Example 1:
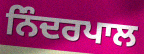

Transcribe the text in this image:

ਨਿੰਦਰਪਾਲ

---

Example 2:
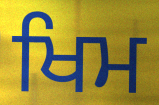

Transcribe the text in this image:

ਖਿਮ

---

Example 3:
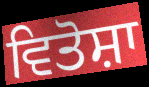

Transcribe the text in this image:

ਵਿਤੋਸ਼ਾ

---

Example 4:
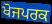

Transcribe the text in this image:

ਖੋਜਪਰਕ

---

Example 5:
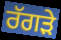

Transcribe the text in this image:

ਰੱਗੜੇ